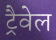
ट्रैवेल